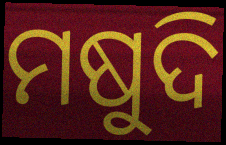
ମଷୁଦି